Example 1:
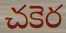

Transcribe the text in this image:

చకెర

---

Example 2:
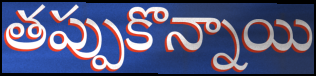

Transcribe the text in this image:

తప్పుకొన్నాయి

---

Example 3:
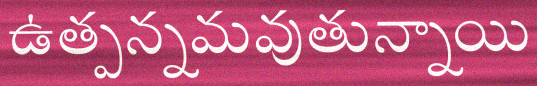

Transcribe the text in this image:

ఉత్పన్నమవుతున్నాయి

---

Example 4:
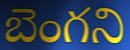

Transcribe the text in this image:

బెంగని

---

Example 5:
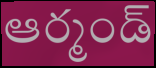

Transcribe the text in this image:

ఆర్మండ్